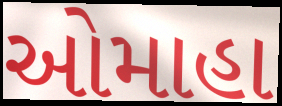
ઓમાહા